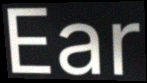
Ear